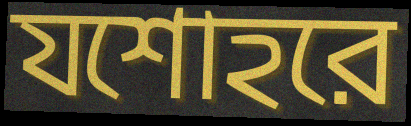
যশোহরে